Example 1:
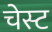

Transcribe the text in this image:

चेस्‍ट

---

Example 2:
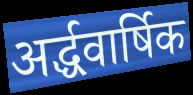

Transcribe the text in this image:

अर्द्धवार्षिक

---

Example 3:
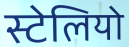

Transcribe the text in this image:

स्टेलियो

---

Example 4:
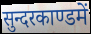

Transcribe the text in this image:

सुन्दरकाण्डमें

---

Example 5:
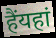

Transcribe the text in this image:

हैंयहां